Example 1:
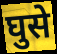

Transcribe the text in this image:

घुसे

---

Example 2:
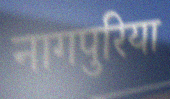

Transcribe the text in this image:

नागपुरिया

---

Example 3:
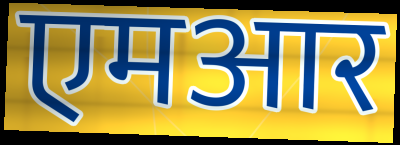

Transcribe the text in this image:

एमआर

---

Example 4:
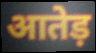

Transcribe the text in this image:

आतेड़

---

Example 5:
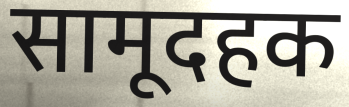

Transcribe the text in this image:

सामूदहक